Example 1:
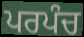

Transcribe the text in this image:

ਪਰਪੰਚ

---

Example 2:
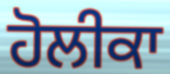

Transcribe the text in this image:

ਹੋਲੀਕਾ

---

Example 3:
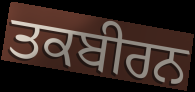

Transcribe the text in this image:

ਤਕਬੀਰਨ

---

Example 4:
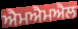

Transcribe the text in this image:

ਐਮਐਮਐਲ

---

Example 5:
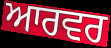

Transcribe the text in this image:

ਆਰਵਰ